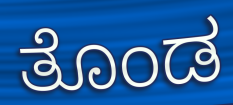
ತೊಂಡ